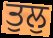
ਤੁਲੁ